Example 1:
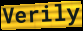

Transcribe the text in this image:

Verily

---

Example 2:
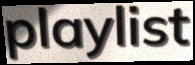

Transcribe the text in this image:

playlist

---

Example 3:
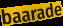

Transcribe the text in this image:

baarade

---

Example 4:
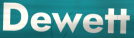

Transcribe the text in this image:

Dewett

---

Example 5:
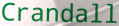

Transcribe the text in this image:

Crandall